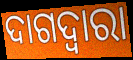
ଦାଗଦ୍ୱାରା